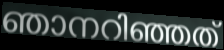
ഞാനറിഞ്ഞത്